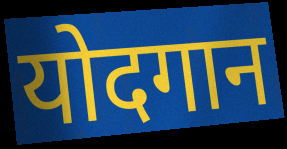
योदगान